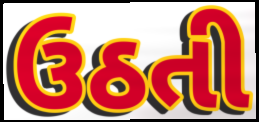
ઉઠતી